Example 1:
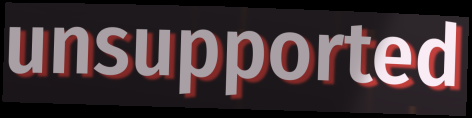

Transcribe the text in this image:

unsupported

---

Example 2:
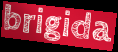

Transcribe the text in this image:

brigida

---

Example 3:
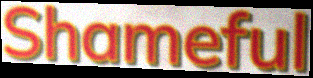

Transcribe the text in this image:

Shameful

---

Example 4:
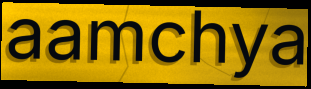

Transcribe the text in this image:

aamchya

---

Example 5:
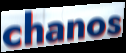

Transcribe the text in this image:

chanos